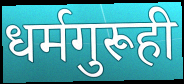
धर्मगुरूही